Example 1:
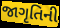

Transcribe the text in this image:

જાગૃતિની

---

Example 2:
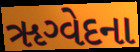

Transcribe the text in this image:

ૠગ્વેદના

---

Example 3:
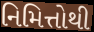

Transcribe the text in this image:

નિમિત્તોથી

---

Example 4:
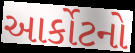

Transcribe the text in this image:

આર્કોટનો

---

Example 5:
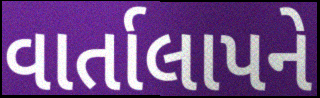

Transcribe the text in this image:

વાર્તાલાપને